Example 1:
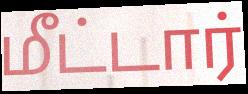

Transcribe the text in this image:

மீட்டார்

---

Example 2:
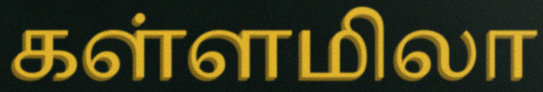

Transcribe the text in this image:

கள்ளமிலா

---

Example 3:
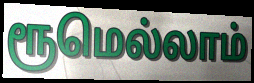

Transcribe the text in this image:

ரூமெல்லாம்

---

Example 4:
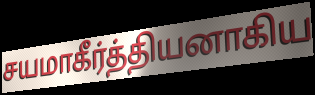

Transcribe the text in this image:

சயமாகீர்த்தியனாகிய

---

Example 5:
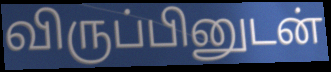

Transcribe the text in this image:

விருப்பினுடன்